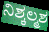
ನಿಶ್ಕಲ್ಮಶ